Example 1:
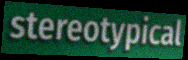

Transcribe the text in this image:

stereotypical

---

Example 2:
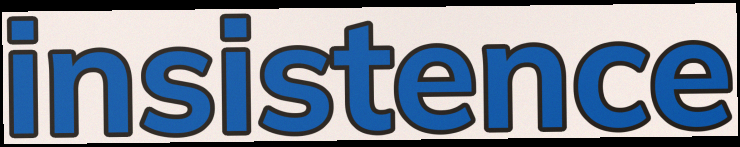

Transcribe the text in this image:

insistence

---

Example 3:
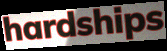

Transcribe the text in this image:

hardships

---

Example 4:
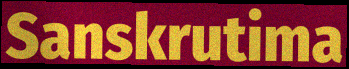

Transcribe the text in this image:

Sanskrutima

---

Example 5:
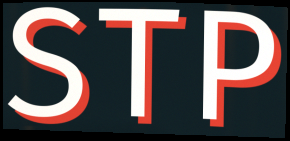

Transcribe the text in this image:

STP